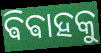
ଵିଵାହକୁ